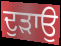
ਦੁੜਾਉ